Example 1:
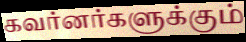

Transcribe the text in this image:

கவர்னர்களுக்கும்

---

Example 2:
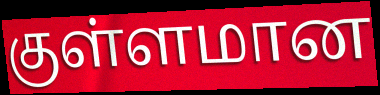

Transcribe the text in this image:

குள்ளமான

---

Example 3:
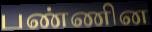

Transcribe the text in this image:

பண்ணின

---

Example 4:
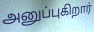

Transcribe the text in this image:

அனுப்புகிறார்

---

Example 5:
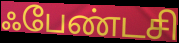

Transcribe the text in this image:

ஃபேண்டசி